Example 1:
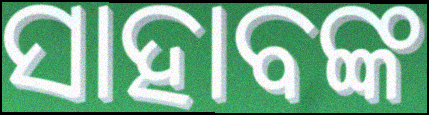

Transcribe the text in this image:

ସାହାବଙ୍କ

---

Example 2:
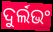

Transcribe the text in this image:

ଦୁର୍ଲଭଂ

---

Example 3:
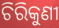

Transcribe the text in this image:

ଚିରିକୁଣୀ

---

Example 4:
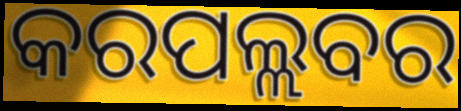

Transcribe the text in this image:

କରପଲ୍ଲବର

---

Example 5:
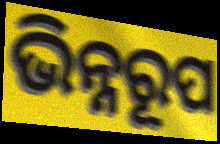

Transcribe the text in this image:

ଭିନ୍ନରୂପ